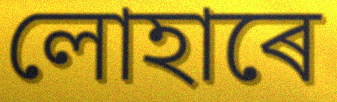
লোহাৰে